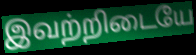
இவற்றிடையே